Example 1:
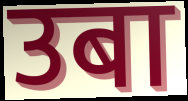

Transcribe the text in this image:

उबा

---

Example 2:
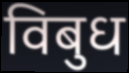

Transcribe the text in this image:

विबुध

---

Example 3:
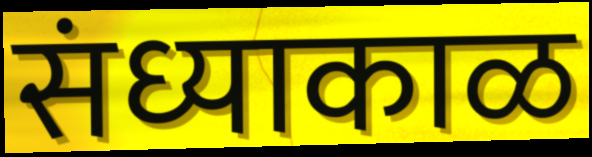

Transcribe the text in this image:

संध्याकाळ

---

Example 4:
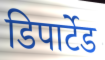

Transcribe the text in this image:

डिपार्टेड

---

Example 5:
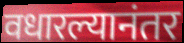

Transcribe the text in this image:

वधारल्यानंतर